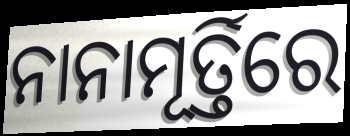
ନାନାମୂର୍ତ୍ତିରେ